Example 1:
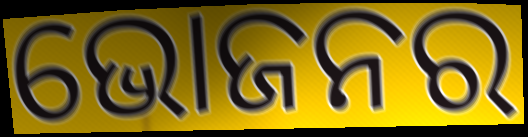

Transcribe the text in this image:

ଭୋଜନର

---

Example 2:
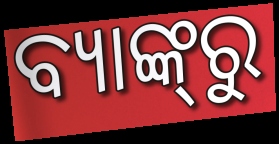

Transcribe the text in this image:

ବ୍ୟାଙ୍କ୍‌ରୁ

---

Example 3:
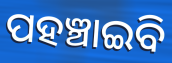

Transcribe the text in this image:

ପହଞ୍ଚାଇବି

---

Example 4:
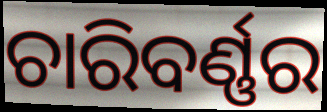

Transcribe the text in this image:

ଚାରିବର୍ଣ୍ଣର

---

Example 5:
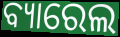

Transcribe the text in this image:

ବ୍ୟାରେଲ